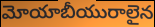
మోయాబీయురాలైన